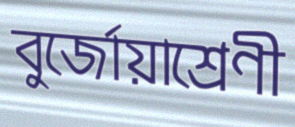
বুর্জোয়াশ্রেণী